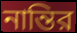
নান্তির